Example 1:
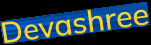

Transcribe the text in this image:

Devashree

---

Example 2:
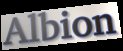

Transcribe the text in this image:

Albion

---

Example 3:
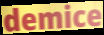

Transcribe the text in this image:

demice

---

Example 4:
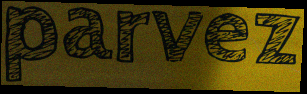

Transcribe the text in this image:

parvez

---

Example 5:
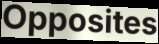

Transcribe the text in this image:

Opposites